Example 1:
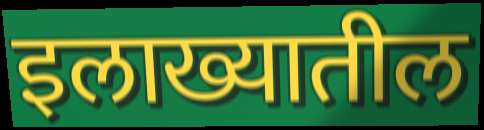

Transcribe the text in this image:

इलाख्यातील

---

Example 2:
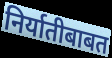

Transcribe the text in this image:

निर्यातीबाबत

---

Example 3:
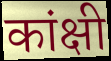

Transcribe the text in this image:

कांक्षी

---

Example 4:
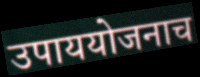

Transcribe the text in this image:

उपाययोजनाच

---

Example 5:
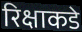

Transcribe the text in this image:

रिक्षाकडे